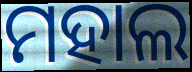
ମହାଲ